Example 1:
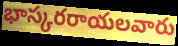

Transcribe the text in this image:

భాస్కరరాయలవారు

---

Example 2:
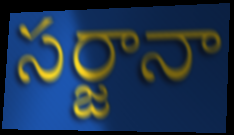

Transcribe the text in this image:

సర్జానా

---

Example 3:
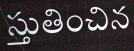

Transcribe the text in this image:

స్తుతించిన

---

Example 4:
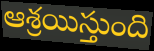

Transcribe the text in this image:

ఆశ్రయిస్తుంది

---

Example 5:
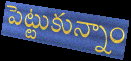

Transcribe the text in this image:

పెట్టుకున్నాం